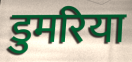
डुमरिया